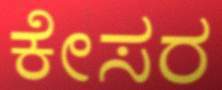
ಕೇಸರ